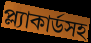
প্ল্যাকার্ডসহ